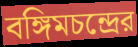
বঙ্গিমচন্দ্রের